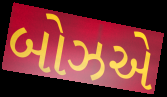
બોઝએ